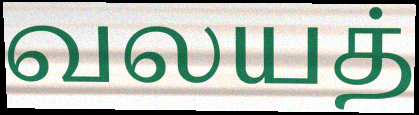
வலயத்